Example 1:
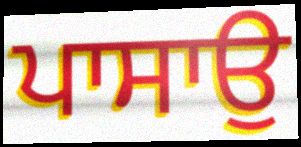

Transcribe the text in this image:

ਪਾਸਾਉ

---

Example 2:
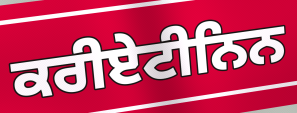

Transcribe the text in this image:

ਕਰੀਏਟੀਨਿਨ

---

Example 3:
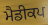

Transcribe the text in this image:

ਮੈਡੀਕਪ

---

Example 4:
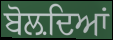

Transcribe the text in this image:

ਬੋਲ਼ਦਿਆਂ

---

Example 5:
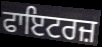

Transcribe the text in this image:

ਫਾਇਟਰਜ਼